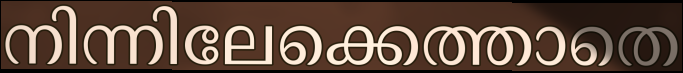
നിന്നിലേക്കെത്താതെ